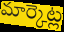
మార్కెట్ల